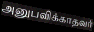
அனுபவிக்காதவர்